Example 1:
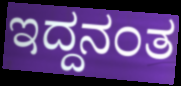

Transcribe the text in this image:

ಇದ್ದನಂತ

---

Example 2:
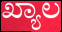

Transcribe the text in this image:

ಖ್ಯಾಲ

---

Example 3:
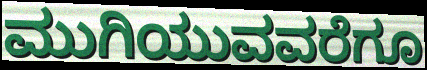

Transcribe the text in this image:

ಮುಗಿಯುವವರೆಗೂ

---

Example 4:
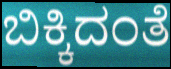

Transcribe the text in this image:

ಬಿಕ್ಕಿದಂತೆ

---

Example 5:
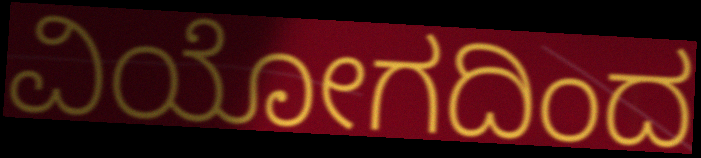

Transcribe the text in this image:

ವಿಯೋಗದಿಂದ